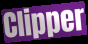
Clipper